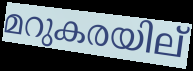
മറുകരയില്